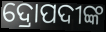
ଦ୍ରୋପଦୀଙ୍କ